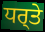
ਧਰ੍ਤੇ